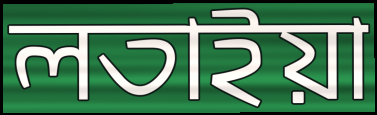
লতাইয়া